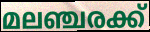
മലഞ്ചരക്ക്